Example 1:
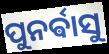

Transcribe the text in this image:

ପୁନର୍ଵାସୁ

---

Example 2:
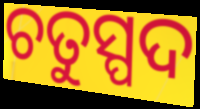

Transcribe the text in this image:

ଚତୁସ୍ପଦ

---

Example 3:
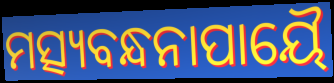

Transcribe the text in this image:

ମତ୍ସ୍ୟବନ୍ଧନାପାୟୈ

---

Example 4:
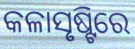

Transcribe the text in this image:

କଳାସୃଷ୍ଟିରେ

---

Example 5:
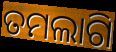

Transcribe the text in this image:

ତମଲାଗି